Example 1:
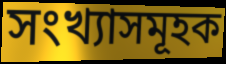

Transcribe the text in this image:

সংখ্যাসমূহক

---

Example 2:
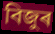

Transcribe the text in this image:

বিজুৰ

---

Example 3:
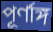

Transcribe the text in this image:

পূৰ্ণাঙ্গ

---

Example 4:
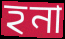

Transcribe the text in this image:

হনা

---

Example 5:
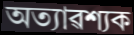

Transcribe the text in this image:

অত্যাৱশ্যক